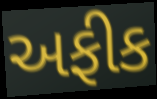
અફીક